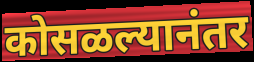
कोसळल्यानंतर